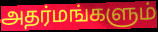
அதர்மங்களும்